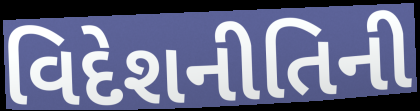
વિદેશનીતિની